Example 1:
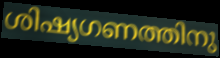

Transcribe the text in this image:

ശിഷ്യഗണത്തിനു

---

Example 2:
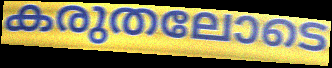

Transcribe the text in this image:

കരുതലോടെ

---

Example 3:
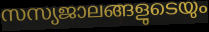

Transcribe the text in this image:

സസ്യജാലങ്ങളുടെയും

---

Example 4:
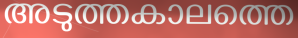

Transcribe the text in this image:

അടുത്തകാലത്തെ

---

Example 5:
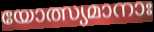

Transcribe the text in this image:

യോത്സ്യമാനാഃ